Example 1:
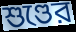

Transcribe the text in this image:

শুণ্ডের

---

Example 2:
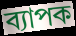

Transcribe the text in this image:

ব্যাপক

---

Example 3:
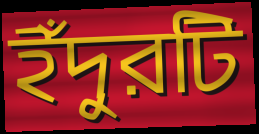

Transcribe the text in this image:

ইঁদুরটি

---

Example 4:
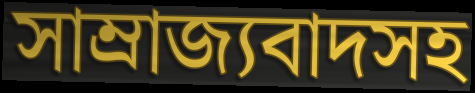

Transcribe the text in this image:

সাম্রাজ্যবাদসহ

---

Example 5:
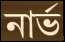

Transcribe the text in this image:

নার্ভ